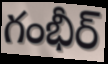
గంభీర్